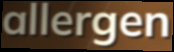
allergen